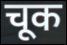
चूक